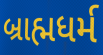
બ્રાહ્મધર્મ